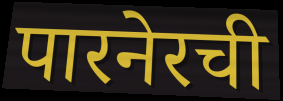
पारनेरची